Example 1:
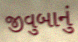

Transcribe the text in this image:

જીવુબાનું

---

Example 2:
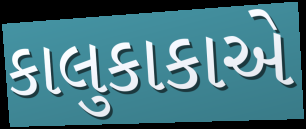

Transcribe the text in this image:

કાલુકાકાએ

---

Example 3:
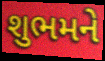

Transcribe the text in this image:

શુભમને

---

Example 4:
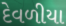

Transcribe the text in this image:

દેવળીયા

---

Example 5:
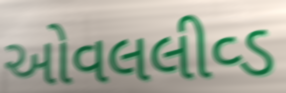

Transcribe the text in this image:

ઓવલલીવ્ડ